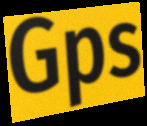
Gps